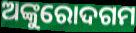
ଅଙ୍କୁରୋଦଗମ